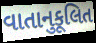
વાતાનુકૂલિત